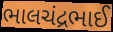
ભાલચંદ્રભાઈ